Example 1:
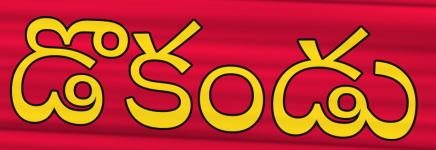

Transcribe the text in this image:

డొకండు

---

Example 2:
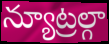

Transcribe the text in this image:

న్యూట్రల్గా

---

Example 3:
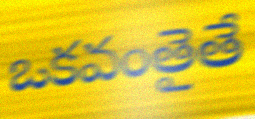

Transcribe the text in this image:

ఒకవంతైతే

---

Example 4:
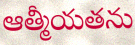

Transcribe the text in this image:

ఆత్మీయతను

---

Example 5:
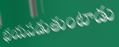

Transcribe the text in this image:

భయపడుతుంటాడు